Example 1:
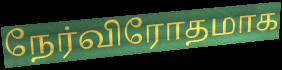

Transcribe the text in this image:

நேர்விரோதமாக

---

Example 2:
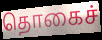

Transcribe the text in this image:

தொகைச்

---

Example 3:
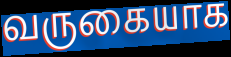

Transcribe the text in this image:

வருகையாக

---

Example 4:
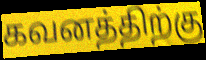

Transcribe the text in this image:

கவனத்திற்கு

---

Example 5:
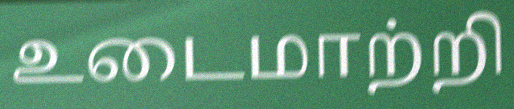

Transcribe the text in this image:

உடைமாற்றி